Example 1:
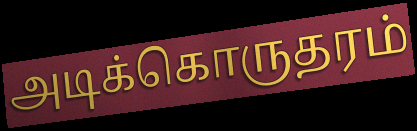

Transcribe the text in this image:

அடிக்கொருதரம்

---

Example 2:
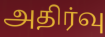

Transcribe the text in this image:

அதிர்வு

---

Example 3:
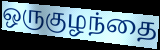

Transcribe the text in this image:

ஒருகுழந்தை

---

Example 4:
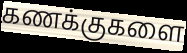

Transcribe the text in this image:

கணக்குகளை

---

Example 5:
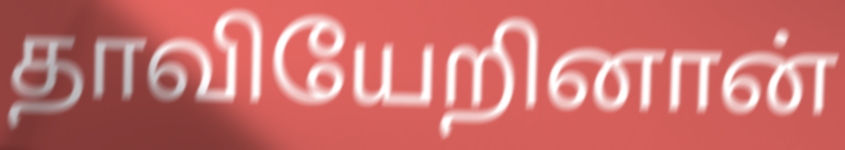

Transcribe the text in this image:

தாவியேறினான்